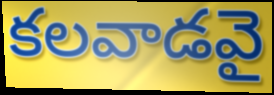
కలవాడవై